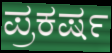
ಪ್ರಕರ್ಷ